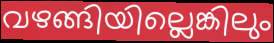
വഴങ്ങിയില്ലെങ്കിലും